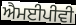
ਐਮਈਪੀਵੀ